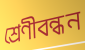
শ্রেণীবন্ধন